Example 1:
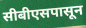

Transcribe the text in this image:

सीबीएसपासून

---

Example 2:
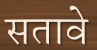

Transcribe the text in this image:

सतावे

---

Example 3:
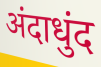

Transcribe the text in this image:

अंदाधुंद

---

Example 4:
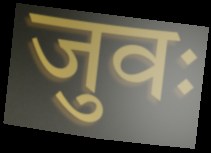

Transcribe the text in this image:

जुवः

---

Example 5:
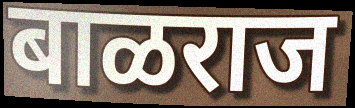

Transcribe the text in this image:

बाळराज